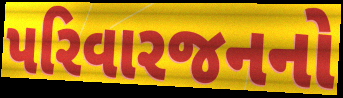
પરિવારજનનો